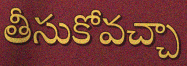
తీసుకోవచ్చా